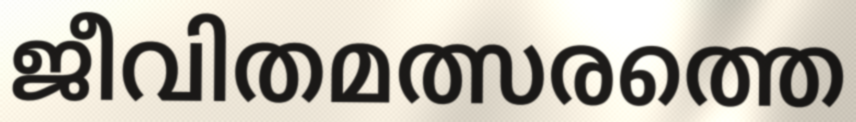
ജീവിതമത്സരത്തെ